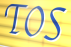
TOS